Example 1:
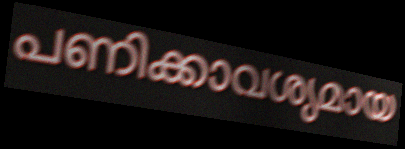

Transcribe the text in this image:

പണിക്കാവശ്യമായ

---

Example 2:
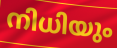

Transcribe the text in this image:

നിധിയും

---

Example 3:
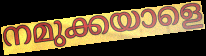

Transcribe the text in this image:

നമുക്കയാളെ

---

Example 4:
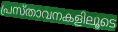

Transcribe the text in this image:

പ്രസ്താവനകളിലൂടെ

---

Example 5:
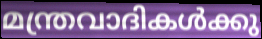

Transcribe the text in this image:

മന്ത്രവാദികൾക്കു